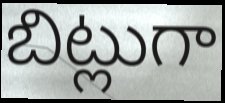
బిట్లుగా